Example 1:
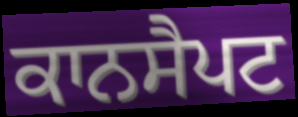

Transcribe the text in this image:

ਕਾਨਸੈਪਟ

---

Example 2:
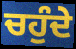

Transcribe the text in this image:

ਚਹੁੰਦੇ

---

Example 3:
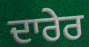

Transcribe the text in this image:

ਦਾਰੇਰ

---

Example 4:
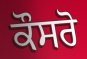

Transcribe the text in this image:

ਕੌਸਰੋ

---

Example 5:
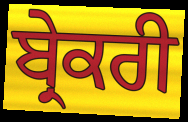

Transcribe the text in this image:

ਬ੍ਰੇਕਰੀ